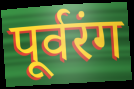
पूर्वरंग